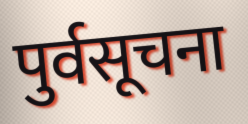
पुर्वसूचना